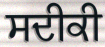
ਸਦੀਕੀ